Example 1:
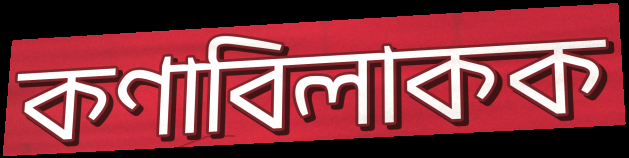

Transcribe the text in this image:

কণাবিলাকক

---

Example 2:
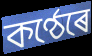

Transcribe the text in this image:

কণ্ঠেৰে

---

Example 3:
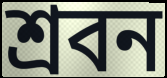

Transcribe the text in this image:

শ্ৰবন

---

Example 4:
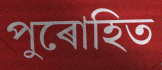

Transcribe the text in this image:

পুৰোহিত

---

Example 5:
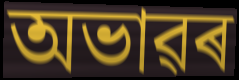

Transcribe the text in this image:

অভাৱৰ